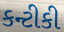
કન્ટીકી